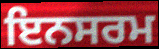
ਇਨਸਰਮ